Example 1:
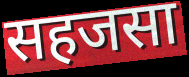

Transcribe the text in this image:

सहजसा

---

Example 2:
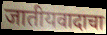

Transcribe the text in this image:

जातीयवादाचा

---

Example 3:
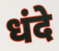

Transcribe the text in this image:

धंदे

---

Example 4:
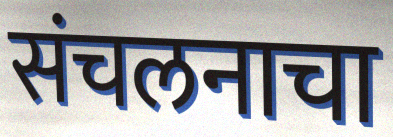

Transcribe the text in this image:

संचलनाचा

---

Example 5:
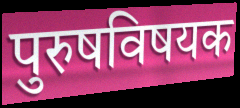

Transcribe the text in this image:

पुरुषविषयक